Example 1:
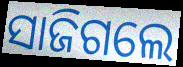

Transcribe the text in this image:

ସାଜିଗଲେ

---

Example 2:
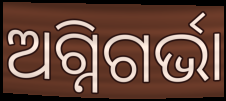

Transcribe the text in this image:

ଅଗ୍ନିଗର୍ଭା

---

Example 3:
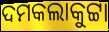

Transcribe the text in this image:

ଦମକଲାକୁଟ୍ଟା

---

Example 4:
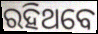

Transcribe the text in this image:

ରହିଥବେ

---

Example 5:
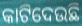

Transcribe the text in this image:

କାଟିଦେଉଛି